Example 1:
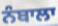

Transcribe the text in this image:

ਨੰਬਾਲਾ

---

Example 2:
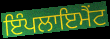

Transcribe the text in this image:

ਇੰਪਲਾਇਮੈਂਟ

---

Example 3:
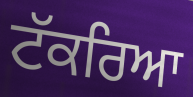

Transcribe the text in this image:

ਟੱਕਰਿਆ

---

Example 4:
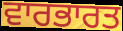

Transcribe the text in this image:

ਵਾਰਭਾਰਤ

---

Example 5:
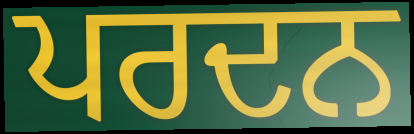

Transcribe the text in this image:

ਪਰਦਨ